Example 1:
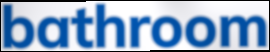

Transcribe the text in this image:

bathroom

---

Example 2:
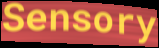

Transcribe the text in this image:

Sensory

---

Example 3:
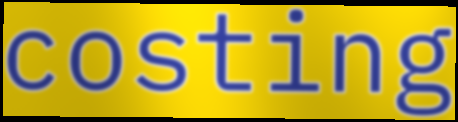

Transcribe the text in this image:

costing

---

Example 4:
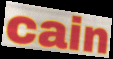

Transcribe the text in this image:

cain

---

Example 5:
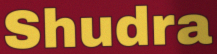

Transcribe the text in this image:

Shudra